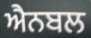
ਐਨਬਲ